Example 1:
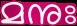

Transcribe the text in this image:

മനുഃ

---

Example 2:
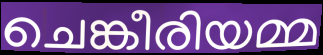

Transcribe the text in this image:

ചെങ്കീരിയമ്മ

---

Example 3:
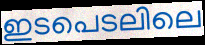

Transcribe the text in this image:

ഇടപെടലിലെ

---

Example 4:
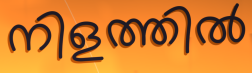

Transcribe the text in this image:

നിളത്തിൽ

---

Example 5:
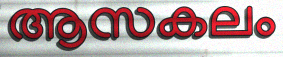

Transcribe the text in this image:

ആസകലം